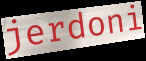
jerdoni